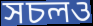
সচলও